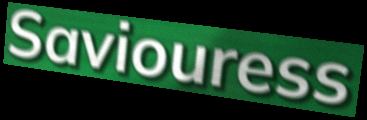
Saviouress